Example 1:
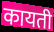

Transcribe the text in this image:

कायती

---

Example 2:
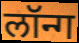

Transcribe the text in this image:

लॉन्ग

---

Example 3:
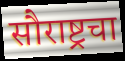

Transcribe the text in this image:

सौराष्ट्रचा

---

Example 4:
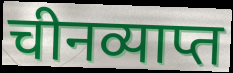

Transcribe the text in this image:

चीनव्याप्त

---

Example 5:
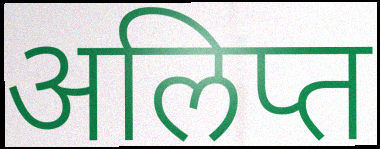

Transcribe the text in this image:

अलिप्त